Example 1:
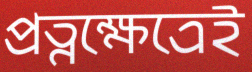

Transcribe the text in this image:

প্রত্নক্ষেত্রেই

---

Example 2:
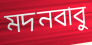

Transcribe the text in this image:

মদনবাবু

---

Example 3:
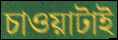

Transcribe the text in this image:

চাওয়াটাই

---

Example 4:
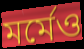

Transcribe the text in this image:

মর্মেও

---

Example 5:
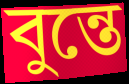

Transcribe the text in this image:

বুন্তে